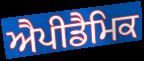
ਐਪੀਡੈਮਿਕ